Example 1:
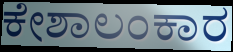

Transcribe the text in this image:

ಕೇಶಾಲಂಕಾರ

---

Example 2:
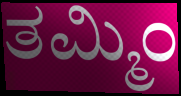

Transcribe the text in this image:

ತಮ್ಮಿಂ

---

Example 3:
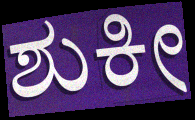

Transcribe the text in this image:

ಶುಕೀ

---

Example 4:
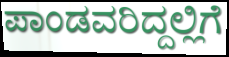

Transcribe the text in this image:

ಪಾಂಡವರಿದ್ದಲ್ಲಿಗೆ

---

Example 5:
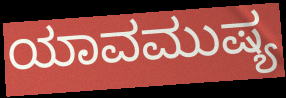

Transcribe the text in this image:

ಯಾವಮುಷ್ಯ